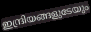
ഇന്ദ്രിയങ്ങളുടേയും